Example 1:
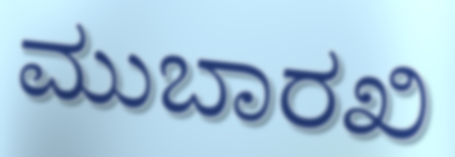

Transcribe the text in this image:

ಮುಬಾರಖಿ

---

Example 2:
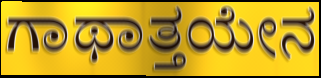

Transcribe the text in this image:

ಗಾಥಾತ್ತಯೇನ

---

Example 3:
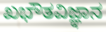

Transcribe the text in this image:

ಖಭೌತವಿಜ್ಞಾನ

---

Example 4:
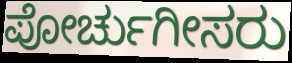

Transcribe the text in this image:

ಪೋರ್ಚುಗೀಸರು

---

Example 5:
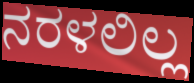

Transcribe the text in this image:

ನರಳಲಿಲ್ಲ